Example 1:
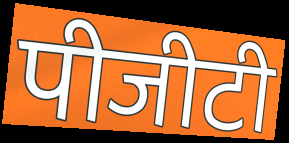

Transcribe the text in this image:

पीजीटी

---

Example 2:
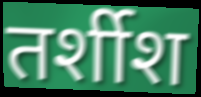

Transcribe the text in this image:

तर्शीश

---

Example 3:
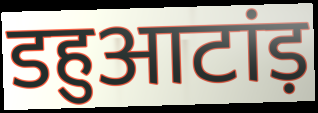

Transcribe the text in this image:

डहुआटांड़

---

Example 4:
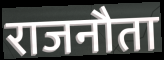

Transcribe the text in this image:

राजनौता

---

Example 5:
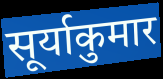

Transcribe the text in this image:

सूर्याकुमार